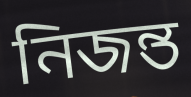
নিজন্ত